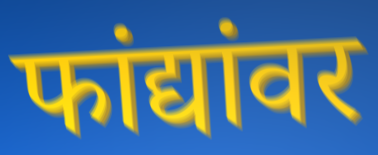
फांद्यांवर